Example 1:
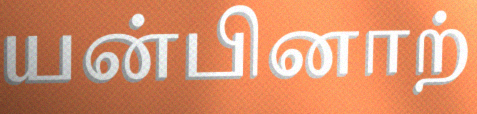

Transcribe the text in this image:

யன்பினாற்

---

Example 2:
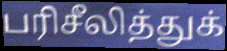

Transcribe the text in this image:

பரிசீலித்துக்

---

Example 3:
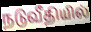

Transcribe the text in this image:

நடுவீதியில்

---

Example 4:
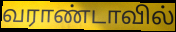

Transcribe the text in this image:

வராண்டாவில்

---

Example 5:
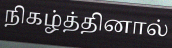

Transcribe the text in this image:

நிகழ்த்தினால்